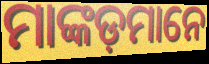
ମାଙ୍କଡ଼ମାନେ